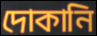
দোকানি